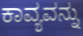
ಕಾವ್ಯವನ್ನು